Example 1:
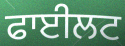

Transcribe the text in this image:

ਫਾਈਲਟ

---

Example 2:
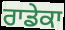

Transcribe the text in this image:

ਰਾਡੇਕਾ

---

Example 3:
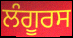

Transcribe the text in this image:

ਲੰਗੂਰਸ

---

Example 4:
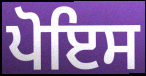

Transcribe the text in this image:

ਪੋਇਸ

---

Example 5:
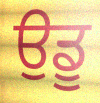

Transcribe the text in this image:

ਉਡੂ